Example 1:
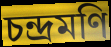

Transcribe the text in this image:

চন্দ্রমণি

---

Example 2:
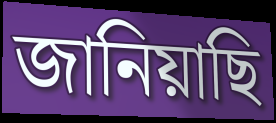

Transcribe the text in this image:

জানিয়াছি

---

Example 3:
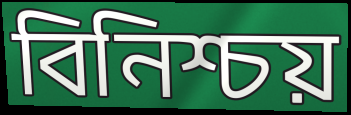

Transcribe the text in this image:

বিনিশ্চয়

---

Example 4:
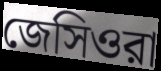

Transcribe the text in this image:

জেসিওরা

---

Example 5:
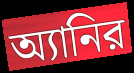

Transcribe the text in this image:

অ্যানির